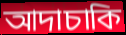
আদাচাকি